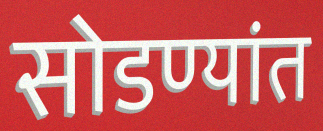
सोडण्यांत